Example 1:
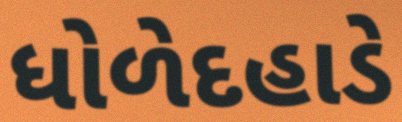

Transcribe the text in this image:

ધોળેદહાડે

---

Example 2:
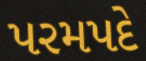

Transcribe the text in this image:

પરમપદે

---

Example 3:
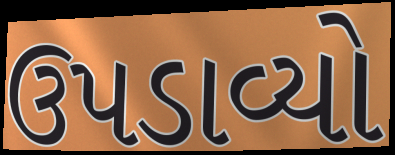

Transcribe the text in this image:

ઉપડાવ્યો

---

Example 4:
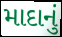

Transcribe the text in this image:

માદાનું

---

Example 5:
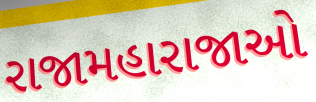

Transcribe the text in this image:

રાજામહારાજાઓ